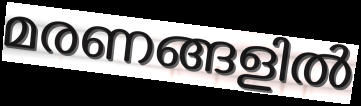
മരണങ്ങളിൽ